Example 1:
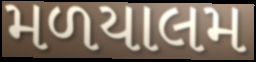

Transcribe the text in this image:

મળયાલમ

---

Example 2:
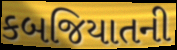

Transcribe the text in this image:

કબજિયાતની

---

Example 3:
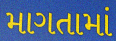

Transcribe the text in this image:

માગતામાં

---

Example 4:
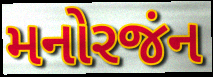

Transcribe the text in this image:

મનોરજંન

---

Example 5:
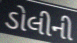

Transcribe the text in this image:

ડોલીની